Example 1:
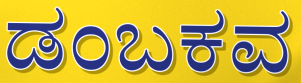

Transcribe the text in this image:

ಡಂಬಕವ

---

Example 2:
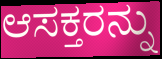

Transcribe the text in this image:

ಆಸಕ್ತರನ್ನು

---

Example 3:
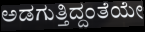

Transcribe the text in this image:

ಅಡಗುತ್ತಿದ್ದಂತೆಯೇ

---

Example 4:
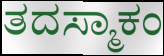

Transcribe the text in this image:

ತದಸ್ಮಾಕಂ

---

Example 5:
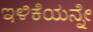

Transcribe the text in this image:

ಇಳಿಕೆಯನ್ನೇ